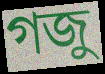
গজু